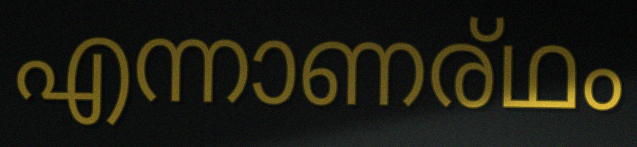
എന്നാണര്ഥം